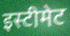
इस्टीमेट